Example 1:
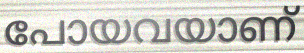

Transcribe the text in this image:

പോയവയാണ്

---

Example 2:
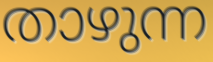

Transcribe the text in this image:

താഴുന്ന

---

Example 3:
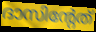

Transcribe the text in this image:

ദാസിന്റേത്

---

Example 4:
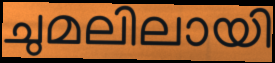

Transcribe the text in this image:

ചുമലിലായി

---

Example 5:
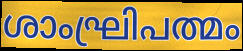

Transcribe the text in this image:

ശാംഘ്രിപത്മം